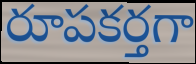
రూపకర్తగా